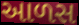
આળસ